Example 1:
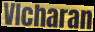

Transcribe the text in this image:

VIcharan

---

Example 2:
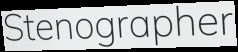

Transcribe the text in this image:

Stenographer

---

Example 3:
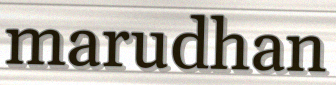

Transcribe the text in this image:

marudhan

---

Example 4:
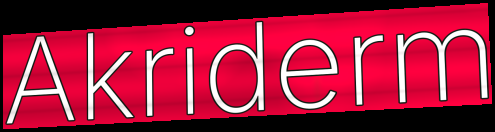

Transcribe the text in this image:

Akriderm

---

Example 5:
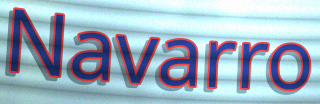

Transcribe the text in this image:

Navarro